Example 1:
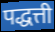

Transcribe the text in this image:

पद्धत्ती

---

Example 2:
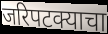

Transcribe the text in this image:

जरिपटक्याचा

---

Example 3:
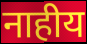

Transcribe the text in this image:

नाहीय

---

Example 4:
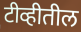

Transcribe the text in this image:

टीव्हीतील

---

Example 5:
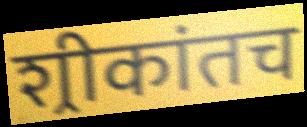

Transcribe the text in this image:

श्रीकांतच